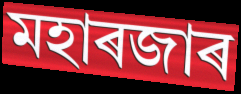
মহাৰজাৰ